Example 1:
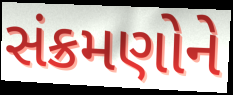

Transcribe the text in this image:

સંક્રમણોને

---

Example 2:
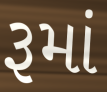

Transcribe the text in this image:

રૂમાં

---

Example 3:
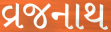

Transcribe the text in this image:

વ્રજનાથ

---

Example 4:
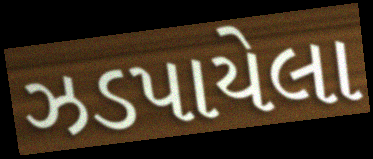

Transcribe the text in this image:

ઝડપાયેલા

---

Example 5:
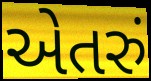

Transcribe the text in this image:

એતરું